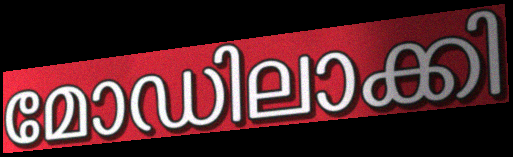
മോഡിലാക്കി